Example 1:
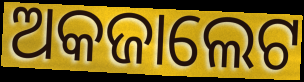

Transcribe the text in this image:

ଅକଜାଲେଟ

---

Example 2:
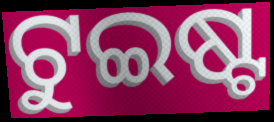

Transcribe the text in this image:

ଟୁଇଷ୍ଟ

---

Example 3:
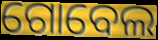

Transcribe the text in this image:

ଗୋବେଲ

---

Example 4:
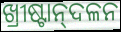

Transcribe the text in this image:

ଖ୍ରୀଷ୍ଟାନ୍‌ଦଳନ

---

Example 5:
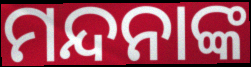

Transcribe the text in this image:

ମନ୍ଦନାଙ୍କ